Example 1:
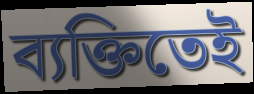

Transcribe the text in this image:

ব্যক্তিতেই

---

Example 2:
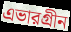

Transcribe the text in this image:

এভারগ্রীন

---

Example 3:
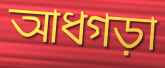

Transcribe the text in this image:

আধগড়া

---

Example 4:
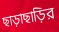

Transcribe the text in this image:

ছাড়াছাড়ির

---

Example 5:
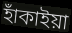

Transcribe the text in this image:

হাঁকাইয়া